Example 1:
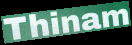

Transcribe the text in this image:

Thinam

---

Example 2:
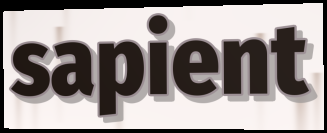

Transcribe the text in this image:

sapient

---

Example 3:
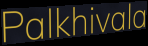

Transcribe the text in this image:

Palkhivala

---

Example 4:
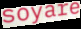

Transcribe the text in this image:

soyare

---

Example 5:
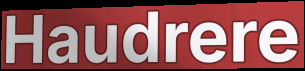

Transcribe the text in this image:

Haudrere